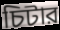
চিটার